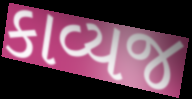
કાવ્યજ